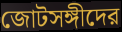
জোটসঙ্গীদের